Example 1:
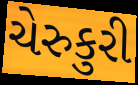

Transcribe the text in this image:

ચેરુકુરી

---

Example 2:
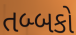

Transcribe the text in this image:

તબ્બકો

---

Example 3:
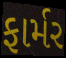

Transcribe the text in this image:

ફાર્મર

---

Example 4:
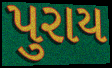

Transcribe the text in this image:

પુરાય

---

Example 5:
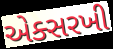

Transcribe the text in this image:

એક્સરખી